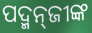
ପଦ୍ମନ୍‌ଜୀଙ୍କ